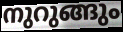
നുറുങ്ങും